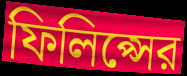
ফিলিপ্সের